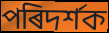
পৰিদৰ্শক